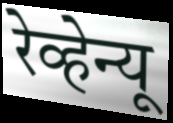
रेव्हेन्यू